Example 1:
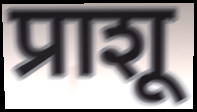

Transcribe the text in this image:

प्राशू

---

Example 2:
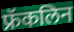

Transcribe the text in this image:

फ्रॅकलिन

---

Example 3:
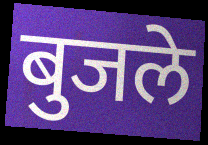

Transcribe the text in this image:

बुजले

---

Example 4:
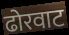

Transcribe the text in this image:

ढोरवाट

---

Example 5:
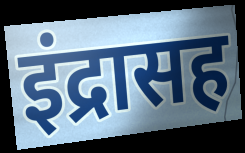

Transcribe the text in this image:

इंद्रासह